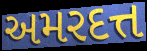
અમરદત્ત